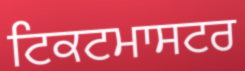
ਟਿਕਟਮਾਸਟਰ